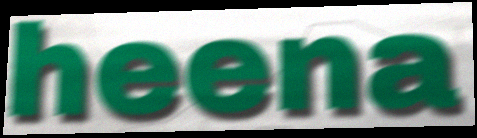
heena